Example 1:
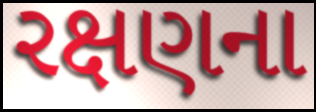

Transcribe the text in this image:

રક્ષણના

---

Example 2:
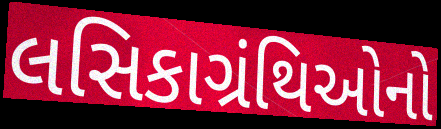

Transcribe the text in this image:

લસિકાગ્રંથિઓનો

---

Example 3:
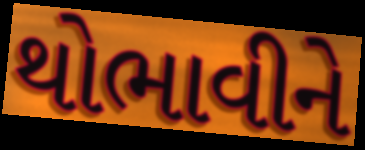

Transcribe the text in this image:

થોભાવીને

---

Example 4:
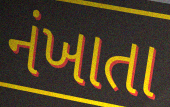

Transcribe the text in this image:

નંખાતા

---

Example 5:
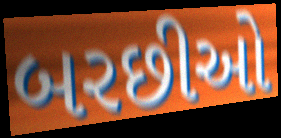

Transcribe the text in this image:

બરછીઓ